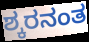
ಶ್ಕರನಂತ